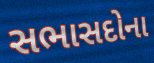
સભાસદોના